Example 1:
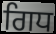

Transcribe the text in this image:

ਗਿਧ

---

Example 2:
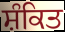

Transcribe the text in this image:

ਸ਼ੰਕਿਤ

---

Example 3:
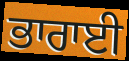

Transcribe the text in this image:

ਭਾਰਾਈ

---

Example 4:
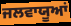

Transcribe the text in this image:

ਜਲਵਾਯੂਆਂ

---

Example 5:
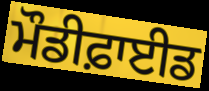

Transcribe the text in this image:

ਮੌਡੀਫ਼ਾਈਡ